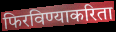
फिरविण्याकरिता